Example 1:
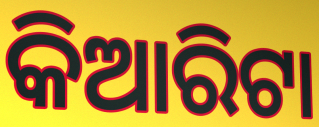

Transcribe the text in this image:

କିଆରିଟା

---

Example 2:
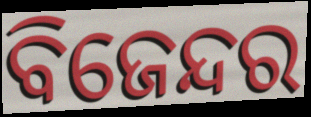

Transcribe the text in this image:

ବିଜେନ୍ଦର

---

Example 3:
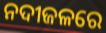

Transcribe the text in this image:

ନଦୀଜଳରେ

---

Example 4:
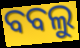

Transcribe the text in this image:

ବବଲୁ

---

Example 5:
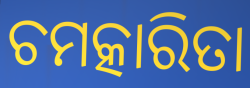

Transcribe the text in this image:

ଚମତ୍କାରିତା